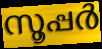
സൂപ്പർ